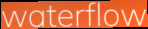
waterflow